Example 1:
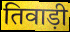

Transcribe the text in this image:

तिवाड़ी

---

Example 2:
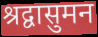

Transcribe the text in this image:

श्रद्वासुमन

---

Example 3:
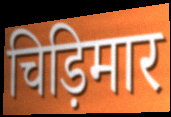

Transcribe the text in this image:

चिड़िमार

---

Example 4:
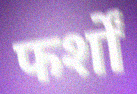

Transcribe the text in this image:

फर्शों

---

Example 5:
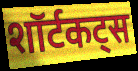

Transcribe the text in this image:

शॉर्टकट्स